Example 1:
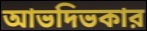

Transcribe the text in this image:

আভদিভকার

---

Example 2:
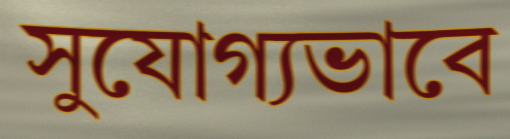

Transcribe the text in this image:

সুযোগ্যভাবে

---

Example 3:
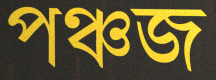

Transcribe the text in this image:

পঞ্চজ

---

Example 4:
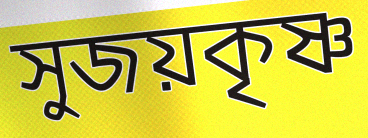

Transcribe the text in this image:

সুজয়কৃষ্ণ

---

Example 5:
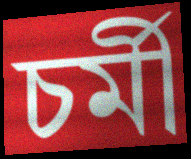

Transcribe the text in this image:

চর্মী